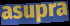
asupra